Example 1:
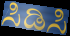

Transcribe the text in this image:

ಸಿಡಿಸಿ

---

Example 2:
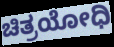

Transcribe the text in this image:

ಚಿತ್ರಯೋಧಿ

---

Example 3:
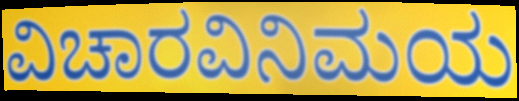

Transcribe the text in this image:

ವಿಚಾರವಿನಿಮಯ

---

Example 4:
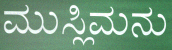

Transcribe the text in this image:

ಮುಸ್ಲಿಮನು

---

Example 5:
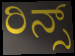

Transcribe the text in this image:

ರಿನ್ಸ್